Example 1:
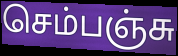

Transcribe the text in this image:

செம்பஞ்சு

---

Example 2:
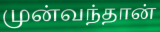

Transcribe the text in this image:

முன்வந்தான்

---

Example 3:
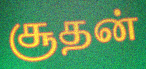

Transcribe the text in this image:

சூதன்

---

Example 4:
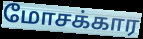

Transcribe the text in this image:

மோசக்கார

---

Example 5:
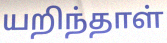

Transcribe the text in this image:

யறிந்தாள்